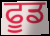
ਫੂਡ